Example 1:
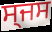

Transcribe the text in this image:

ਸ੍ਜਸ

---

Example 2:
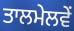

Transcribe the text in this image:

ਤਾਲਮੇਲਵੇਂ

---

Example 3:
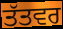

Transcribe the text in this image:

ਤੱਤਵਰ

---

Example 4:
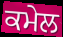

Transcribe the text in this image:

ਕਮੇਲ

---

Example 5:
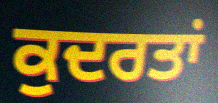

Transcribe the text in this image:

ਕੁਦਰਤਾਂ